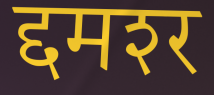
द्दमश्र